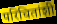
परिचितांशी